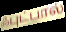
ஃபுட்பால்